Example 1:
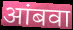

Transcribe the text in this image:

आंबवा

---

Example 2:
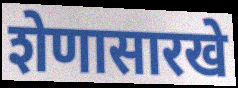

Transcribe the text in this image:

शेणासारखे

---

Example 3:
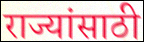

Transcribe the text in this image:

राज्यांसाठी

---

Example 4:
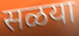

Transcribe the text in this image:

सळया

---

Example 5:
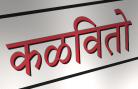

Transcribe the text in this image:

कळवितो